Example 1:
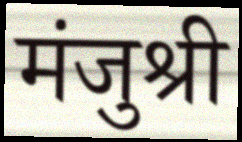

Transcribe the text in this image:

मंजुश्री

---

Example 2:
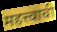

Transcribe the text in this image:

महत्त्वाची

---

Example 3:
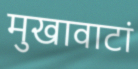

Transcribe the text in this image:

मुखावाटां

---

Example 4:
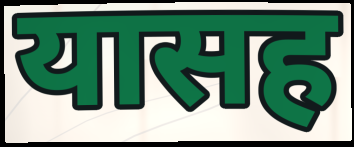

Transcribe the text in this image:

यासह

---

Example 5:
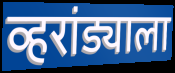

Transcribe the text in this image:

व्हरांड्याला